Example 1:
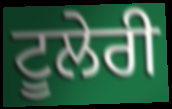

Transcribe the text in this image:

ਟੂਲੇਰੀ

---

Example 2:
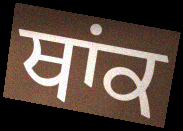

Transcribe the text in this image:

ਥਾਂਕ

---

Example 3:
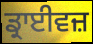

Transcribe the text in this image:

ਡ੍ਰਾਈਵਜ਼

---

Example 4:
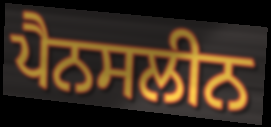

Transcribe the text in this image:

ਪੈਨਸਲੀਨ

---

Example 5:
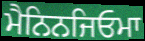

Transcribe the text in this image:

ਮੈਨਿਨਜਿਓਮਾ